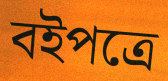
বইপত্রে